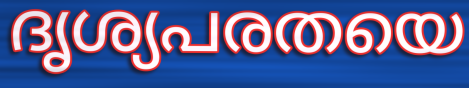
ദൃശ്യപരതയെ